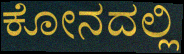
ಕೋನದಲ್ಲಿ